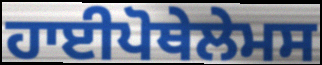
ਹਾਈਪੋਥੇਲੇਮਸ